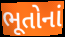
ભૂતોનાં